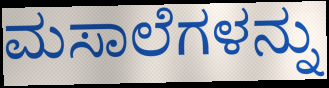
ಮಸಾಲೆಗಳನ್ನು